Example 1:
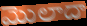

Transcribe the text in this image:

మొలాదా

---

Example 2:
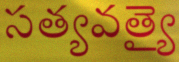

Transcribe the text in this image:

సత్యవత్యై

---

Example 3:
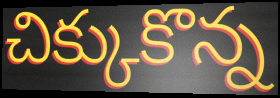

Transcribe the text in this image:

చిక్కుకొన్న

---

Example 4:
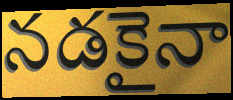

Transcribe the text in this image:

నడకైనా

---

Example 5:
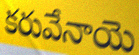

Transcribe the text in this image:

కరువేనాయె